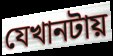
যেখানটায়